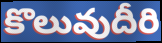
కొలువుదీరి